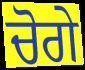
ਚੋਗੇ